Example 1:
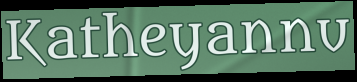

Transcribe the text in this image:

Katheyannu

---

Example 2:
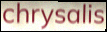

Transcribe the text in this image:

chrysalis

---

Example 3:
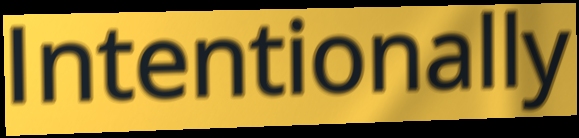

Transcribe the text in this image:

Intentionally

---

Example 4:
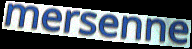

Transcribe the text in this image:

mersenne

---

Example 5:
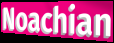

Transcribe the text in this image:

Noachian